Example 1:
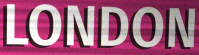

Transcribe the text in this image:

LONDON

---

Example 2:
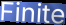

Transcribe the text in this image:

Finite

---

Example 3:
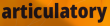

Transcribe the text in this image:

articulatory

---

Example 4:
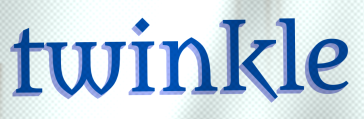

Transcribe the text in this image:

twinkle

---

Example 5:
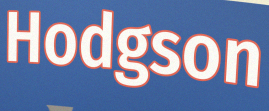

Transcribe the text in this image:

Hodgson